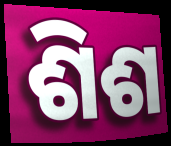
ଶିଶ